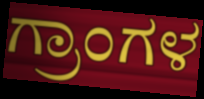
ಗ್ರಾಂಗಳ